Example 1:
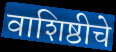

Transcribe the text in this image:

वाशिष्ठीचे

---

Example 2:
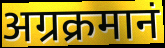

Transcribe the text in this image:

अग्रक्रमानं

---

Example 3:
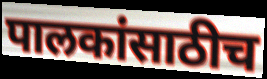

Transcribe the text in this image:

पालकांसाठीच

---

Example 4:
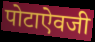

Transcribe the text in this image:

पोटाऐवजी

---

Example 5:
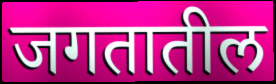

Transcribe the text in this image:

जगतातील